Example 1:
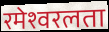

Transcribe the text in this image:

रमेश्वरलता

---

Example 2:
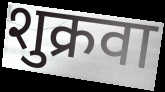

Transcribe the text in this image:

शुक्रवा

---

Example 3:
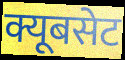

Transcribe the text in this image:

क्यूबसेट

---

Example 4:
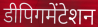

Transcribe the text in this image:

डीपिगमेंटेशन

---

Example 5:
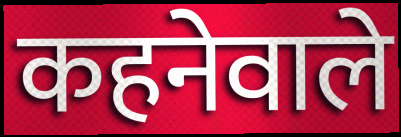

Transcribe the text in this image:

कहनेवाले